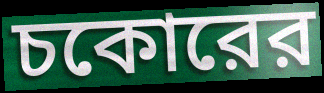
চকোরের